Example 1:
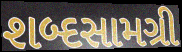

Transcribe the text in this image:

શબ્દસામગ્રી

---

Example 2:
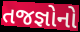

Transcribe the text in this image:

તજજ્ઞોનો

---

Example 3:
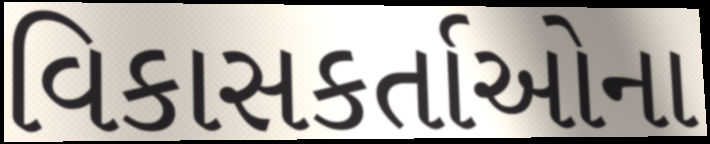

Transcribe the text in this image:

વિકાસકર્તાઓના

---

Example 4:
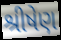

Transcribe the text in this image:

શ્રીષેણ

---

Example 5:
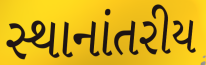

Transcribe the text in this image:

સ્થાનાંતરીય